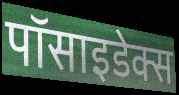
पॉसाइडेक्स